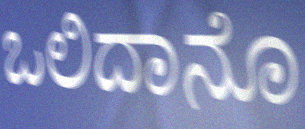
ಒಲಿದಾನೊ